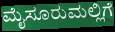
ಮೈಸೂರುಮಲ್ಲಿಗೆ